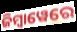
ଜିମ୍ୱାୱେରେ